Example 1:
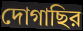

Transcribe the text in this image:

দোগাছির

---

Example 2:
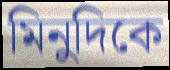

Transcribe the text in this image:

মিনুদিকে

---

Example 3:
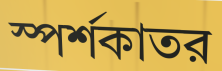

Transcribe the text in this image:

স্পর্শকাতর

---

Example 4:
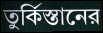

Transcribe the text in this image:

তুর্কিস্তানের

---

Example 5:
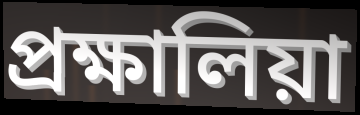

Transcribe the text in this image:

প্রক্ষালিয়া